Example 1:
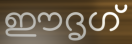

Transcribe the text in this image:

ഈദൃഗ്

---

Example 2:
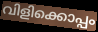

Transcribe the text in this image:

വിളിക്കൊപ്പം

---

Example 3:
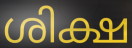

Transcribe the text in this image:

ശിക്ഷ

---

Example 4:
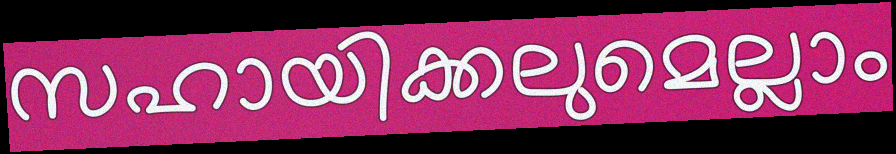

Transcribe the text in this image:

സഹായിക്കലുമെല്ലാം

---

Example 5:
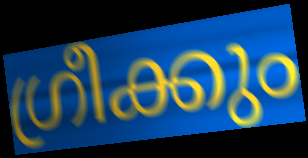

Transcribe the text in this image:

ഗ്രീക്കും